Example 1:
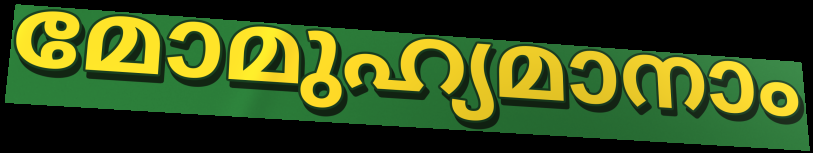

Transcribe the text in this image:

മോമുഹ്യമാനാം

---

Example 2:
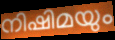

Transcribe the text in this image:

നിഷിമയും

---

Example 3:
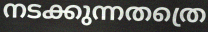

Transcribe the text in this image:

നടക്കുന്നതത്രെ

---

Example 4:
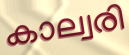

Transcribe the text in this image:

കാല്വരി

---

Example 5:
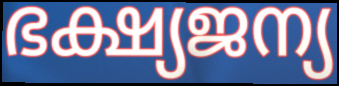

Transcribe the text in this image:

ഭക്ഷ്യജന്യ